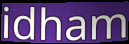
idham